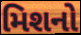
મિશનો